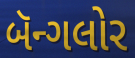
બૅન્ગલોર